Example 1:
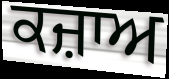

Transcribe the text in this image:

ਕਜ਼ਾਅ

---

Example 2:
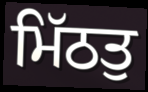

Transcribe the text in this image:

ਮਿੱਠਤੁ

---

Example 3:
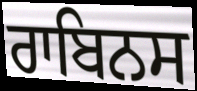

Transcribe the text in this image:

ਰਾਬਿਨਸ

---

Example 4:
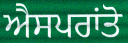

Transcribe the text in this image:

ਐਸਪਰਾਂਤੋ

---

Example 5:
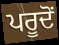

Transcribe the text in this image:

ਪਰੂਦੋਂ